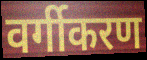
वर्गीकरण